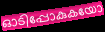
ഓടിപ്പോകുകയോ